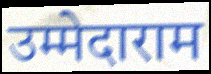
उम्मेदाराम